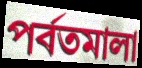
পৰ্বতমালা